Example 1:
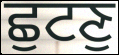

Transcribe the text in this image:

ਛੁਟਣੁ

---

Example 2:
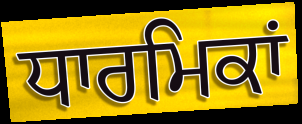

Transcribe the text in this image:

ਧਾਰਮਿਕਾਂ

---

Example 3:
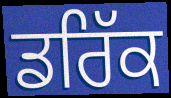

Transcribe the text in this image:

ਡਰਿੱਕ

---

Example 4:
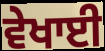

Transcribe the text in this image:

ਵੇਖਾਈ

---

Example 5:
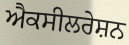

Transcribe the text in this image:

ਐਕਸੀਲਰੇਸ਼ਨ